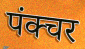
पंक्चर